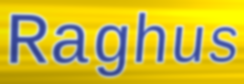
Raghus